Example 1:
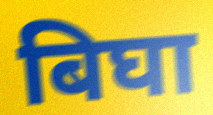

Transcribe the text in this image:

बिघा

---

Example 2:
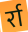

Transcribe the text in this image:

र्रा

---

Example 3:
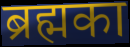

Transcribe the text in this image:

ब्रह्मका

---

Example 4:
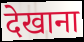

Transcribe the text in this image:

देखाना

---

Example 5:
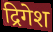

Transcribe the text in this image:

द्रिगेश